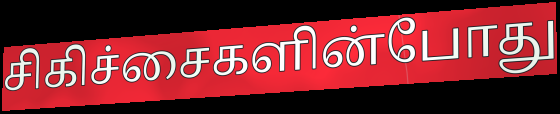
சிகிச்சைகளின்போது